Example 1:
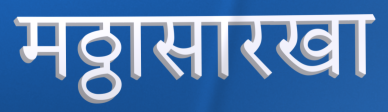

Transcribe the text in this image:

मठ्ठासारखा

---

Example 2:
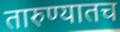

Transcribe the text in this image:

तारुण्यातच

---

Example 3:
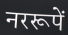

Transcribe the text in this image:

नररूपें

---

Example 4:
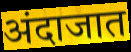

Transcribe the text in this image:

अंदाजात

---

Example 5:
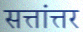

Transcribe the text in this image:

सत्तांत्तर